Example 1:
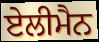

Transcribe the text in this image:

ਏਲੀਮੈਨ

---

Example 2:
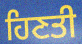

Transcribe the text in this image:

ਹਿਣਤੀ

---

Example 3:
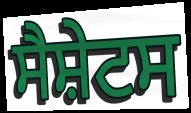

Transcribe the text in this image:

ਸੈਸ਼ੇਟਸ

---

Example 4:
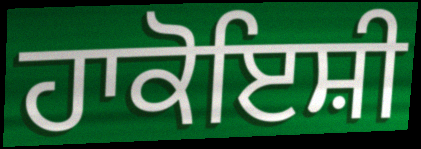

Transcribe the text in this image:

ਹਾਕੋਇਸ਼ੀ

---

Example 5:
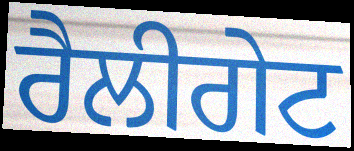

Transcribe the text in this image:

ਰੈਲੀਗੇਟ